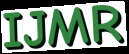
IJMR